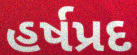
હર્ષપ્રદ